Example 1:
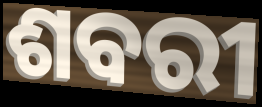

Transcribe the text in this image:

ଶବରୀ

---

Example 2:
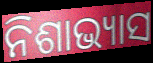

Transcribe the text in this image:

ନିଶାଭ୍ୟାସ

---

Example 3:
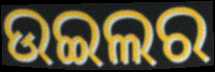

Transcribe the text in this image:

ଉଇଲର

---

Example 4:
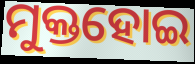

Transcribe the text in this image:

ମୁକ୍ତହୋଇ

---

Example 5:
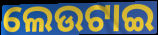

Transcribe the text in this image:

ଲେଉଟାଇ